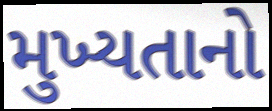
મુખ્યતાનો